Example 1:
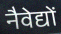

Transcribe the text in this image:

नैवेद्यों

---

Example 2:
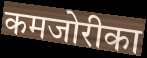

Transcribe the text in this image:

कमजोरीका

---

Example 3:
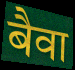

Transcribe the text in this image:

बैवा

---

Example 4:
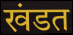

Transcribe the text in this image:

खंडत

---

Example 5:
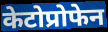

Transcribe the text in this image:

केटोप्रोफेन